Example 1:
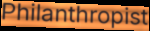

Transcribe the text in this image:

Philanthropist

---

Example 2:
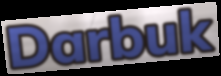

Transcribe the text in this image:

Darbuk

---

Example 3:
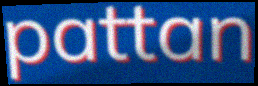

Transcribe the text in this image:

pattan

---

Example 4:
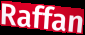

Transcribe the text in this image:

Raffan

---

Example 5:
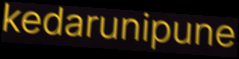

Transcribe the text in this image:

kedarunipune